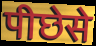
पीछेसे